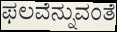
ಫಲವೆನ್ನುವಂತೆ